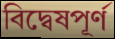
বিদ্বেষপূর্ণ